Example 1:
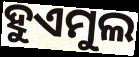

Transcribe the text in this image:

ହୁଏମୁଲ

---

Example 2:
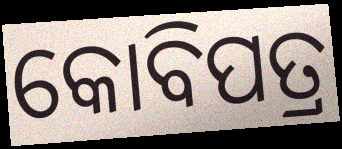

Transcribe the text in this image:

କୋବିପତ୍ର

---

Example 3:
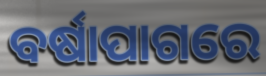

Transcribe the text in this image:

ବର୍ଷାପାଗରେ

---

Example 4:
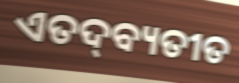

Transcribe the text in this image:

ଏତଦ୍‌ବ୍ୟତୀତ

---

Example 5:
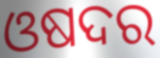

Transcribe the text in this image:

ଓଷଦର